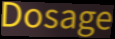
Dosage